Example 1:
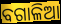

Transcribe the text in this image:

ବଗାଳିଆ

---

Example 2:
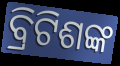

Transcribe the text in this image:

ବ୍ରିଟିଶଙ୍କ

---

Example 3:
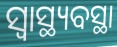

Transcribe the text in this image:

ସ୍ଵାସ୍ଥ୍ୟବସ୍ଥା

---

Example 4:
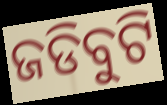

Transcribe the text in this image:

ଜଡିବୁଟି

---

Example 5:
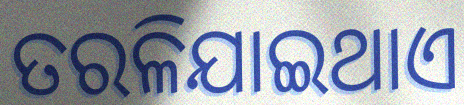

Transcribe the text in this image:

ତରଳିଯାଇଥାଏ